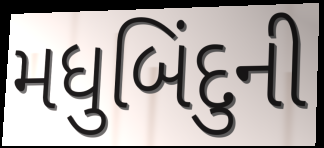
મધુબિંદુની